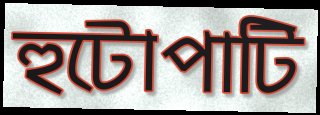
হুটোপাটি